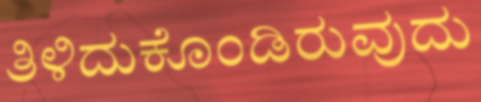
ತಿಳಿದುಕೊಂಡಿರುವುದು